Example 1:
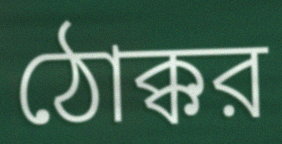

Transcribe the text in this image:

ঠোক্কর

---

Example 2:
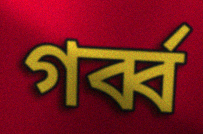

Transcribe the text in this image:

গর্ব্ব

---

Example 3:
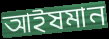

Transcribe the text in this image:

আইষমান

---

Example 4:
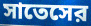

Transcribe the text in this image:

সাতেসের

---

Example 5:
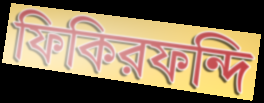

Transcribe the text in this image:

ফিকিরফন্দি